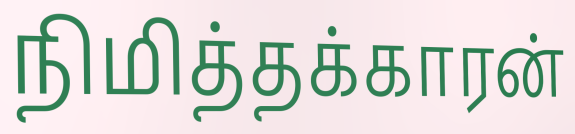
நிமித்தக்காரன்